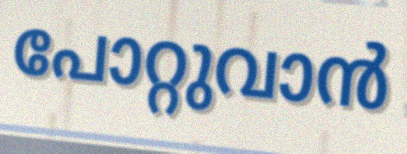
പോറ്റുവാൻ